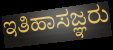
ಇತಿಹಾಸಜ್ಞರು